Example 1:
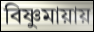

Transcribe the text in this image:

বিষ্ণুমায়ায়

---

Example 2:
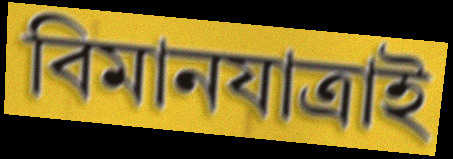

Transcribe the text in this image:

বিমানযাত্রাই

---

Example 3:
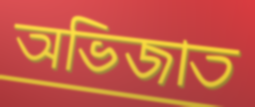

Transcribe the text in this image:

অভিজাত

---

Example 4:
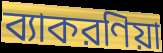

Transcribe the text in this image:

ব্যাকরণিয়া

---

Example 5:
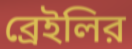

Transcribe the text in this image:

ব্রেইলির